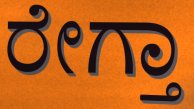
ರೇಗ್ತಾ